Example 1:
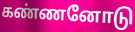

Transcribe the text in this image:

கண்ணனோடு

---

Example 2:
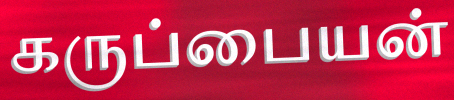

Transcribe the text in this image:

கருப்பையன்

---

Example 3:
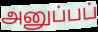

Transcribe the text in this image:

அனுப்பப்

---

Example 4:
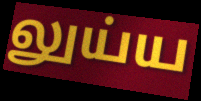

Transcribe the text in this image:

லுய்ய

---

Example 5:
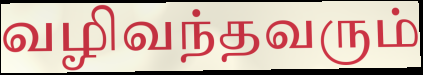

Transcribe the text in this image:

வழிவந்தவரும்